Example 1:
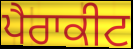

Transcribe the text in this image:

ਪੈਰਾਕੀਟ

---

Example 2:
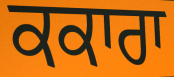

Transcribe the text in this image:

ਕਕਾਰਾ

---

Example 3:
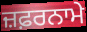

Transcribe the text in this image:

ਜ਼ਫ਼ਰਨਾਮੇ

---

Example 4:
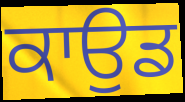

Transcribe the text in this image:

ਕਾਉਡ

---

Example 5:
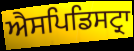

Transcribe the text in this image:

ਐਸਪਿਡਿਸਟ੍ਰਾ